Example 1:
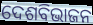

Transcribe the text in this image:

ଦେଶବିଭାଜନ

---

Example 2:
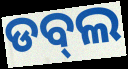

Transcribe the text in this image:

ଡବ୍‌ଲ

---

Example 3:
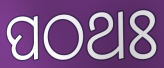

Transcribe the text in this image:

ପଠଥଃ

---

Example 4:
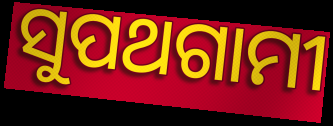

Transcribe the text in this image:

ସୁପଥଗାମୀ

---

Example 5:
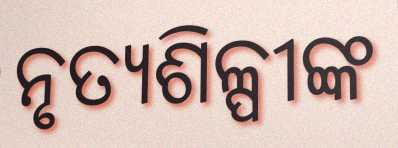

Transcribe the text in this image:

ନୃତ୍ୟଶିଳ୍ପୀଙ୍କ